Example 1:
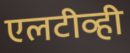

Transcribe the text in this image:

एलटीव्ही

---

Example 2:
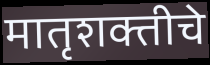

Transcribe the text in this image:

मातृशक्तीचे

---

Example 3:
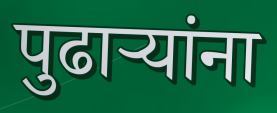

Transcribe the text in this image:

पुढाऱ्यांना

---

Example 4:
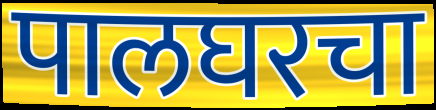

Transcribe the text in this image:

पालघरचा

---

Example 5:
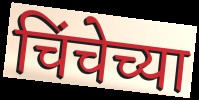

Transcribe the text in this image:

चिंचेच्या